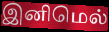
இனிமெல்